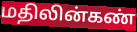
மதிலின்கண்